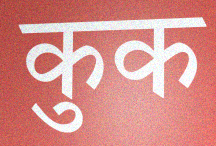
कुक